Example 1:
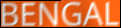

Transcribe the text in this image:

BENGAL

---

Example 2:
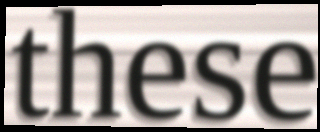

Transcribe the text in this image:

these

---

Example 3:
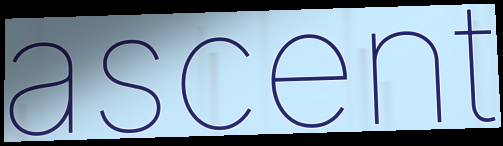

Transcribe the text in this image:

ascent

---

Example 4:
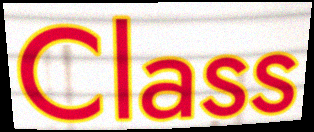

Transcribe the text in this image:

Class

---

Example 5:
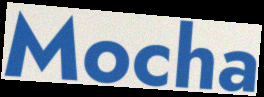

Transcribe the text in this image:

Mocha